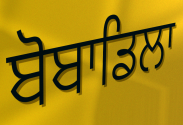
ਬੋਬਾਡਿਲਾ